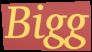
Bigg